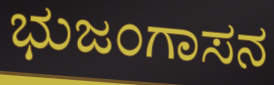
ಭುಜಂಗಾಸನ